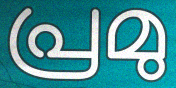
പ്രമു